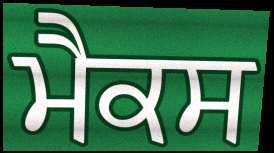
ਮੈਕਸ